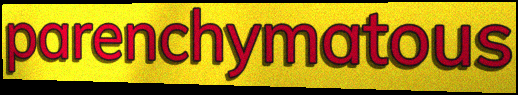
parenchymatous